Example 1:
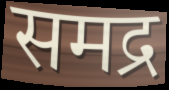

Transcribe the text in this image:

समद्र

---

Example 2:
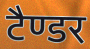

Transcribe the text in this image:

टैण्डर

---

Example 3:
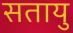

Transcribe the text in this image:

सतायु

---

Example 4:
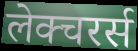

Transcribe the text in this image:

लेक्चरर्स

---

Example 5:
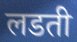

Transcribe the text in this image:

लडती